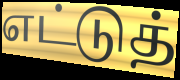
எட்டுத்